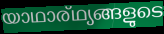
യാഥാര്ഥ്യങ്ങളുടെ